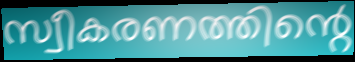
സ്വീകരണത്തിന്റെ